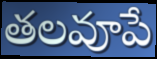
తలవూపే